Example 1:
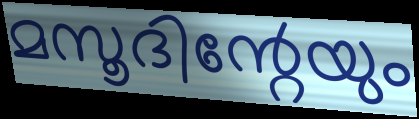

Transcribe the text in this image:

മസൂദിന്റേയും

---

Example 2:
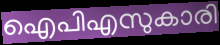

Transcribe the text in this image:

ഐപിഎസുകാരി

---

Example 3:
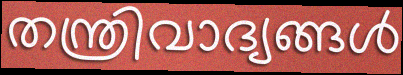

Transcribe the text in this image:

തന്ത്രിവാദ്യങ്ങൾ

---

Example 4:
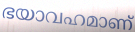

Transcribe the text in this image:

ഭയാവഹമാണ്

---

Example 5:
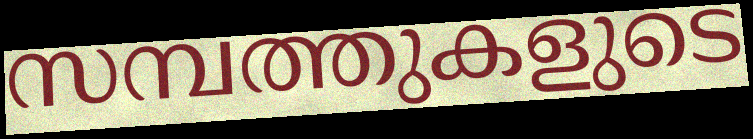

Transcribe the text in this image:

സമ്പത്തുകളുടെ